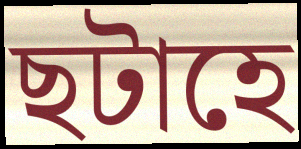
ছটাহে